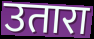
उतारा